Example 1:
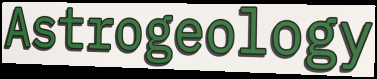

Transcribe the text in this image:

Astrogeology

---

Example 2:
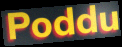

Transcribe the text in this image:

Poddu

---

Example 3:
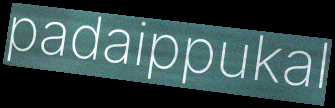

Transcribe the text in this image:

padaippukal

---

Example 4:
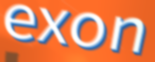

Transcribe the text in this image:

exon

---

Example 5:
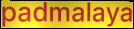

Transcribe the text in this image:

padmalaya